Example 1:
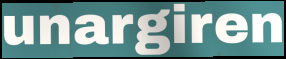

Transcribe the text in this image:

unargiren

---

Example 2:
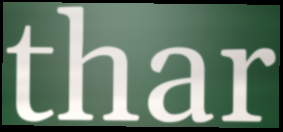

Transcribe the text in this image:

thar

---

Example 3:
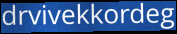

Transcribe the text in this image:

drvivekkordeg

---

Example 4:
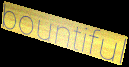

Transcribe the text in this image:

bountiful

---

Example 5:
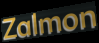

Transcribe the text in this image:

Zalmon